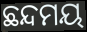
ଛନ୍ଦମୟ